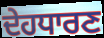
ਦੇਹਧਾਰਣ